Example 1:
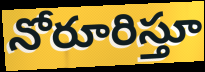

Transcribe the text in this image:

నోరూరిస్తూ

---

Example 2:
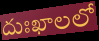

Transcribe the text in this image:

దుఃఖాలలో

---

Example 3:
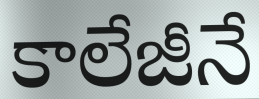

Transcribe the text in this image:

కాలేజీనే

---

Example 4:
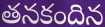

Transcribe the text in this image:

తనకందిన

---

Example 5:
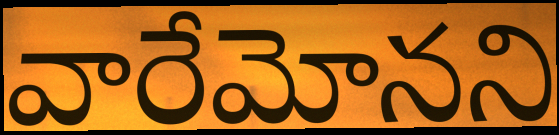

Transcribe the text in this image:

వారేమోనని